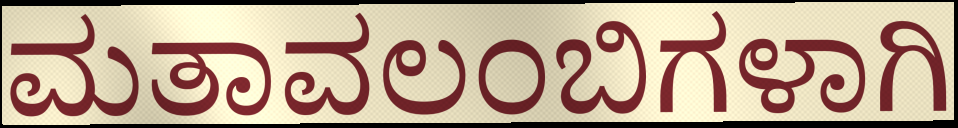
ಮತಾವಲಂಬಿಗಳಾಗಿ